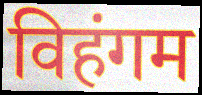
विहंगम